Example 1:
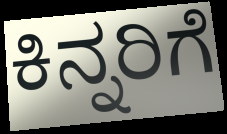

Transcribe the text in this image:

ಕಿನ್ನರಿಗೆ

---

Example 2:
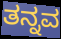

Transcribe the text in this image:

ತನ್ನವ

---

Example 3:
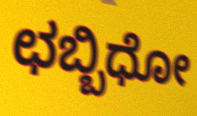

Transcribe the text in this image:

ಛಬ್ಬಿಧೋ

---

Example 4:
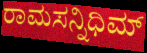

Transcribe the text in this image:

ರಾಮಸನ್ನಿಧಿಮ್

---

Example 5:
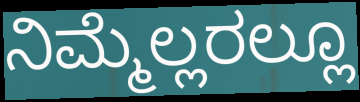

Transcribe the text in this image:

ನಿಮ್ಮೆಲ್ಲರಲ್ಲೂ